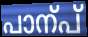
പാന്പ്